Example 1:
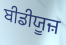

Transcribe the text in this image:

ਬੀਡੀਯੂਜ਼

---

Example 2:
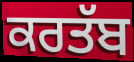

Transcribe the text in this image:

ਕਰਤੱਬ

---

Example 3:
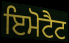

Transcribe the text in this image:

ਇਮੋਟੈਟ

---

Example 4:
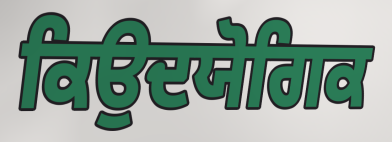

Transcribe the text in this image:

ਕਿਉਦਯੋਗਿਕ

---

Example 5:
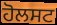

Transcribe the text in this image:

ਹੋਲਸਟ